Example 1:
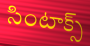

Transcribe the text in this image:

సింటాక్స్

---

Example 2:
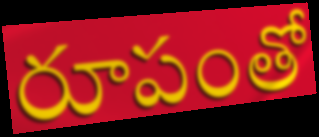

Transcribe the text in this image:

రూపంతో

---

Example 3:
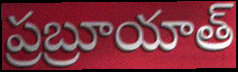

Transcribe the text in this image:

ప్రబ్రూయాత్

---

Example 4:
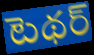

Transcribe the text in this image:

టెథర్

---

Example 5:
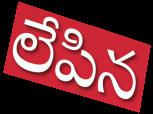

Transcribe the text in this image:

లేపిన